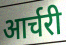
आर्चरी